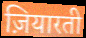
ज़ियारती